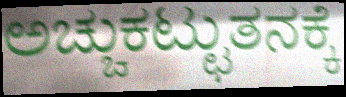
ಅಚ್ಚುಕಟ್ಟುತನಕ್ಕೆ